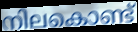
നിലകൊണ്ട്